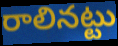
రాలినట్టు